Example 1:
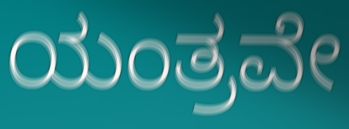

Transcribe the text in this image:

ಯಂತ್ರವೇ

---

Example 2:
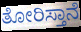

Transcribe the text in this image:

ತೋರಿಸ್ತಾನೆ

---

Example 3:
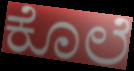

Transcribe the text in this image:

ಕೊಲೆ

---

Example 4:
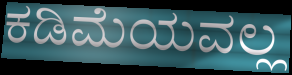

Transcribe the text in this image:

ಕಡಿಮೆಯವಲ್ಲ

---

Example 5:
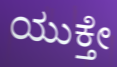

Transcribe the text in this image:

ಯುಕ್ತೇ